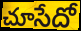
చూసేదో